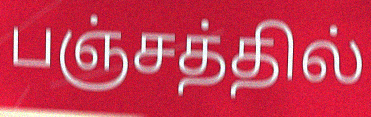
பஞ்சத்தில்